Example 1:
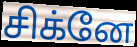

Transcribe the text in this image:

சிக்னே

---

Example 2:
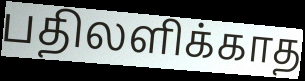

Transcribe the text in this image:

பதிலளிக்காத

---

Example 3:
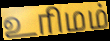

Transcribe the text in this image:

உரிமம்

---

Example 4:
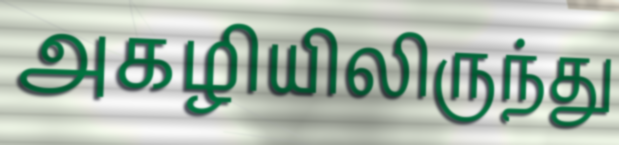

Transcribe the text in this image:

அகழியிலிருந்து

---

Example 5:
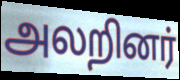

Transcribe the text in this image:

அலறினர்